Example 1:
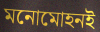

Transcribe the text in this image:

মনোমোহনই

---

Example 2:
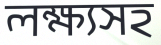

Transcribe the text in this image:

লক্ষ্যসহ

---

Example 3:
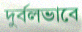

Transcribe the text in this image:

দুর্বলভাবে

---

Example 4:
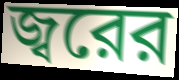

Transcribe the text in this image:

জ্বরের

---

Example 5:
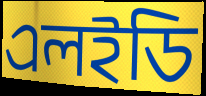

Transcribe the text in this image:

এলইডি